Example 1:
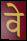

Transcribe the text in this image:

वे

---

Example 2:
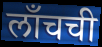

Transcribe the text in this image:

लाँचची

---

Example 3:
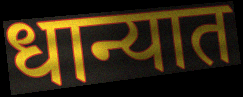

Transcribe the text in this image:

धान्यात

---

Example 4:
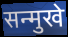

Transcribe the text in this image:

सन्मुखे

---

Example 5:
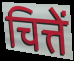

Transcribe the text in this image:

चित्तें